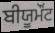
ਬੀਯੂਮੌਂਟ